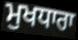
ਮੁਖਧਾਰਾ